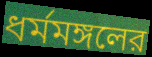
ধর্মমঙ্গলের